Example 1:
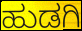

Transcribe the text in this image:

ಹುಡಗಿ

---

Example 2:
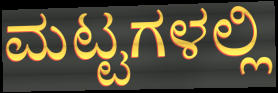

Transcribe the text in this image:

ಮಟ್ಟಗಳಲ್ಲಿ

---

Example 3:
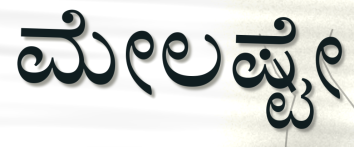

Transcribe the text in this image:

ಮೇಲಷ್ಟೇ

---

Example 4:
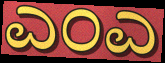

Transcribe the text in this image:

ಎಂಎ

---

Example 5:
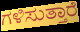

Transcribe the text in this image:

ಗಳಿಸುತ್ತಾರೆ